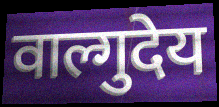
वाल्गुदेय